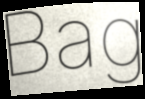
Bag